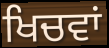
ਖਿਚਵਾਂ